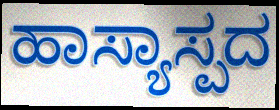
ಹಾಸ್ಯಾಸ್ಪದ